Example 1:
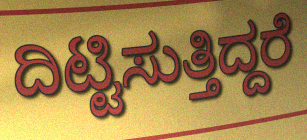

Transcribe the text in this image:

ದಿಟ್ಟಿಸುತ್ತಿದ್ದರೆ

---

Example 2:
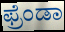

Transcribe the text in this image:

ಫ್ರೆಂಡಾ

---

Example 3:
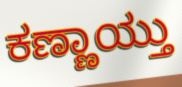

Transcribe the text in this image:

ಕಣ್ಣಾಯ್ತು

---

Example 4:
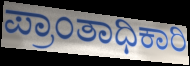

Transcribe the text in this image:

ಪ್ರಾಂತಾಧಿಕಾರಿ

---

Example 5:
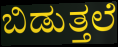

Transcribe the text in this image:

ಬಿಡುತ್ತಲೆ